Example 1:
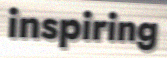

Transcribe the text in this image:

inspiring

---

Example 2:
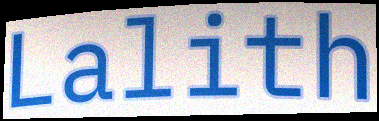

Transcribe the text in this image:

Lalith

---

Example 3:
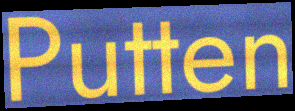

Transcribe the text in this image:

Putten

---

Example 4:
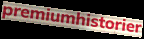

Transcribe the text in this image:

premiumhistorier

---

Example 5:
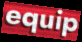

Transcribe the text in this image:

equip